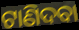
ଟାଣିଦବା